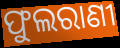
ଫୁଲରାଣୀ